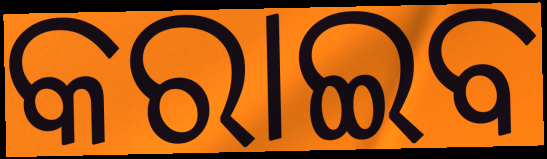
କରାଇବ